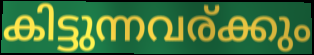
കിട്ടുന്നവര്ക്കും